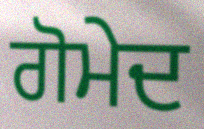
ਗੋਮੇਦ